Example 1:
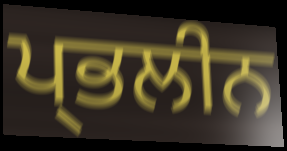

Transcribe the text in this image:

ਪ੍ਭਲੀਨ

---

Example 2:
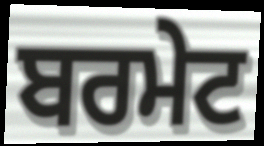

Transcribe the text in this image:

ਬਰਮੇਟ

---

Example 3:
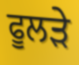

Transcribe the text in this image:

ਫੂਲੜੇ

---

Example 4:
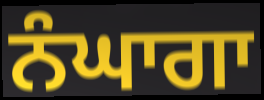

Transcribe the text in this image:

ਨੰਘਾਗਾ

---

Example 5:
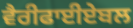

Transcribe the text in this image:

ਵੈਰੀਫਾਈਏਬਲ